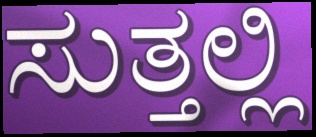
ಸುತ್ತಲ್ಲಿ